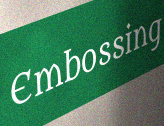
Embossing